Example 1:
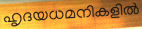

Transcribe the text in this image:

ഹൃദയധമനികളിൽ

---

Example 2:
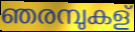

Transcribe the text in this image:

ഞരമ്പുകള്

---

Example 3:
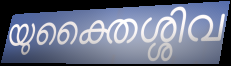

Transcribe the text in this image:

യുക്തൈശ്ശിവ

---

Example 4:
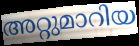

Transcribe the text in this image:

അറ്റുമാറിയ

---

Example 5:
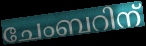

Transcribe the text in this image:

ചേംബറിന്